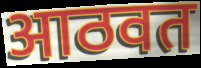
आठवत